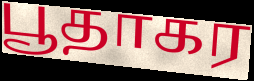
பூதாகர